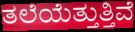
ತಲೆಯೆತ್ತುತ್ತಿವೆ